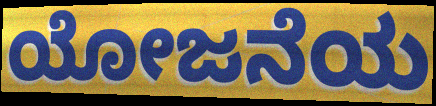
ಯೋಜನೆಯ